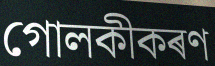
গোলকীকৰণ